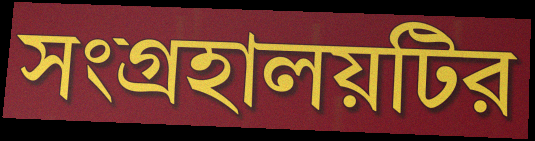
সংগ্রহালয়টির